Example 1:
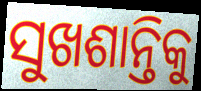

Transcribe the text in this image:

ସୁଖଶାନ୍ତିକୁ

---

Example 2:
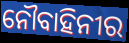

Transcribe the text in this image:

ନୌବାହିନୀର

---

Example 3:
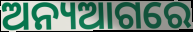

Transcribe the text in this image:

ଅନ୍ୟଆଗରେ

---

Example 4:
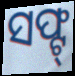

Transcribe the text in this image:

ସଫ୍ଟ୍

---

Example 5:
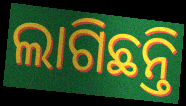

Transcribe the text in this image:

ଲାଗିଛନ୍ତି